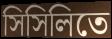
সিসিলিতে